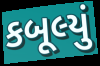
કબૂલ્યું